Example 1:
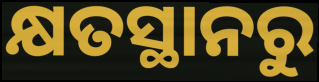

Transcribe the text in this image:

କ୍ଷତସ୍ଥାନରୁ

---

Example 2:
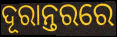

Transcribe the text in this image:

ଦୂରାନ୍ତରରେ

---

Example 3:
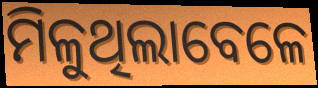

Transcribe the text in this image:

ମିଳୁଥିଲାବେଳେ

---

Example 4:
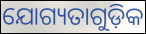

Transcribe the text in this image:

ଯୋଗ୍ୟତାଗୁଡ଼ିକ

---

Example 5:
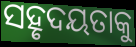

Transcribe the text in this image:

ସହୃଦୟତାକୁ